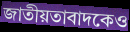
জাতীয়তাবাদকেও